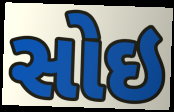
સોઇ